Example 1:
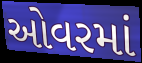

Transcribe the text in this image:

ઓવરમાં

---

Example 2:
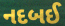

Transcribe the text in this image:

નદબઈ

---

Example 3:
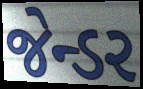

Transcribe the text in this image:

જેન્ડર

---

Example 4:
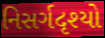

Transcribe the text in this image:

નિસર્ગદૃશ્યો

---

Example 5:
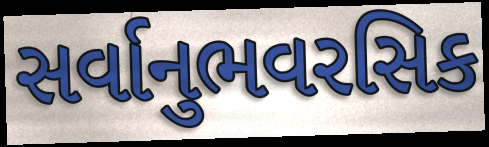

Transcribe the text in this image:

સર્વાનુભવરસિક